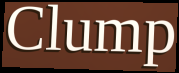
Clump